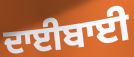
ਦਾਈਬਾਈ